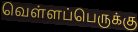
வெள்ளப்பெருக்கு